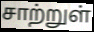
சாற்றுள்